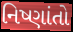
નિષ્ણાંતો